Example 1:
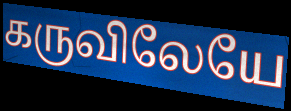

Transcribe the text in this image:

கருவிலேயே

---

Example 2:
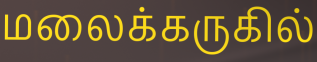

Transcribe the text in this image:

மலைக்கருகில்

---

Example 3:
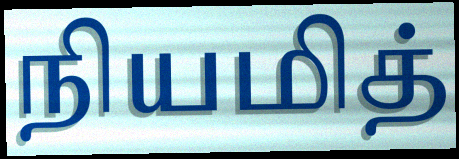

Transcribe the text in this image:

நியமித்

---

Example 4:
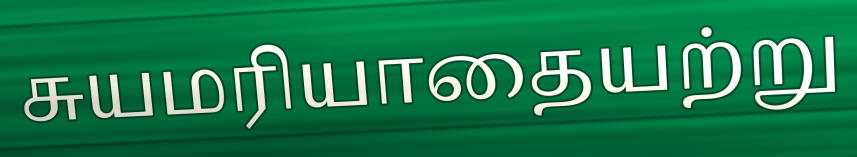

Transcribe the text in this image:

சுயமரியாதையற்று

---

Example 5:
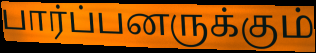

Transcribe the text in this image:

பார்ப்பனருக்கும்